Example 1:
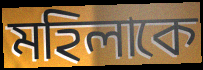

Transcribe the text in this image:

মহিলাকে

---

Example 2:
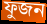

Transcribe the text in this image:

ফুজন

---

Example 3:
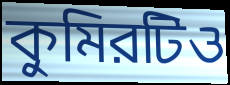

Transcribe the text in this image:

কুমিরটিও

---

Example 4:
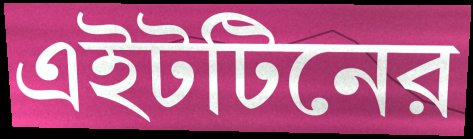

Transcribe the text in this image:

এইটটিনের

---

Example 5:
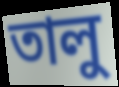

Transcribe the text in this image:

তালু